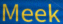
Meek